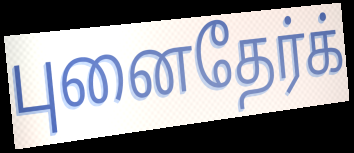
புனைதேர்க்